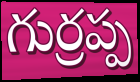
గుర్రప్ప